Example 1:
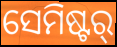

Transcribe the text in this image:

ସେମିଷ୍ଟର୍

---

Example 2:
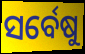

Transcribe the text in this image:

ସର୍ବେଷୁ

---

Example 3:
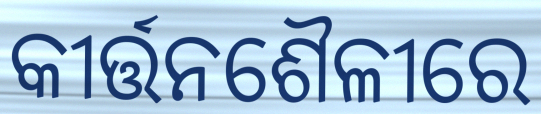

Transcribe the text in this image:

କୀର୍ତ୍ତନଶୈଳୀରେ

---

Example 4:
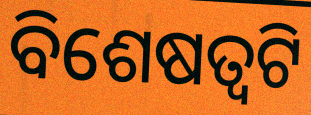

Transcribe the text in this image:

ବିଶେଷତ୍ୱଟି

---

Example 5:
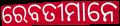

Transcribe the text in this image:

ରେବତୀମାନେ